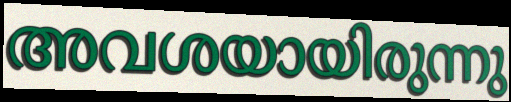
അവശയായിരുന്നു